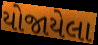
યોજાયેલા